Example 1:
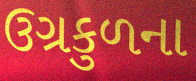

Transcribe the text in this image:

ઉગ્રકુળના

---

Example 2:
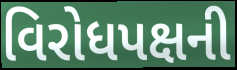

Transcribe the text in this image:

વિરોધપક્ષની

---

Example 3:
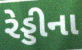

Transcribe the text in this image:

રેડ્ડીના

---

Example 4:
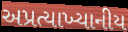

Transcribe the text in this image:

અપ્રત્યાખ્યાનીય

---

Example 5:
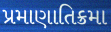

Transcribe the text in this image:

પ્રમાણાતિક્રમા